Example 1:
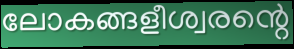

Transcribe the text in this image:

ലോകങ്ങളീശ്വരന്റെ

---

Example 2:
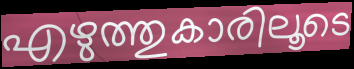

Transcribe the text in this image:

എഴുത്തുകാരിലൂടെ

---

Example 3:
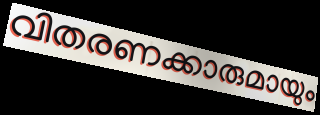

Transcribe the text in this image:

വിതരണക്കാരുമായും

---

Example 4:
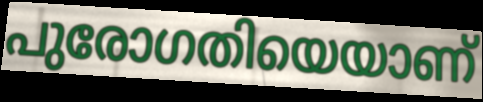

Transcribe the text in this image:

പുരോഗതിയെയാണ്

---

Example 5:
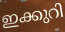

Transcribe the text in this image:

ഇക്കുറി